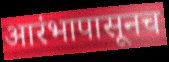
आरंभापासूनच